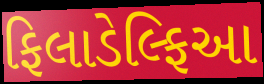
ફિલાડેલ્ફિઆ